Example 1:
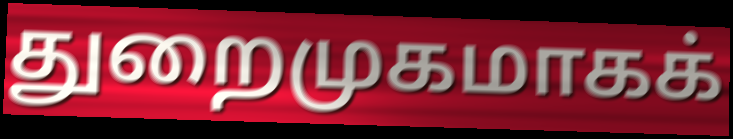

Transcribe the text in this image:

துறைமுகமாகக்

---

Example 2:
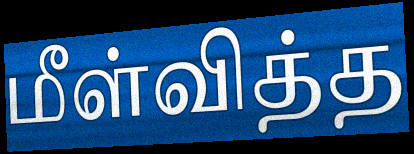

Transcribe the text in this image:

மீள்வித்த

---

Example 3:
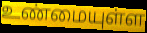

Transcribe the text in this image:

உண்மையுள்ள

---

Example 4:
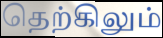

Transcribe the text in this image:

தெற்கிலும்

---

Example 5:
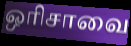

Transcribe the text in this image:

ஒரிசாவை